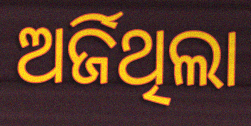
ଅର୍ଜିଥିଲା